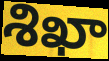
శిఖా